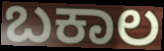
ಬಕಾಲ